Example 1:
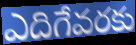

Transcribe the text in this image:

ఎదిగేవరకు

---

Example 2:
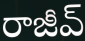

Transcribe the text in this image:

రాజీవ్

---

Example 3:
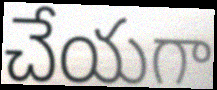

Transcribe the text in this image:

చేయగా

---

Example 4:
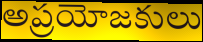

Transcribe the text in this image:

అప్రయోజకులు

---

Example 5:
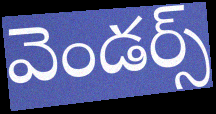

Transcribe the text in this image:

వెండర్స్